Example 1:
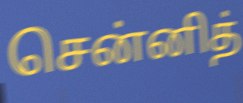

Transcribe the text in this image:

சென்னித்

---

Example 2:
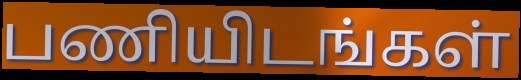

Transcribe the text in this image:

பணியிடங்கள்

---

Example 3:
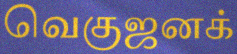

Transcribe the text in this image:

வெகுஜனக்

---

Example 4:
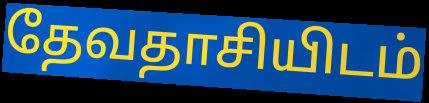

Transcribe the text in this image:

தேவதாசியிடம்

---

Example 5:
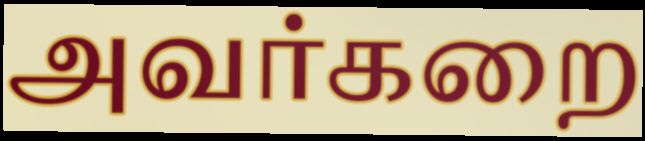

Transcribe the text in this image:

அவர்கறை